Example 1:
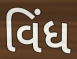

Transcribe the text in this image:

વિંધ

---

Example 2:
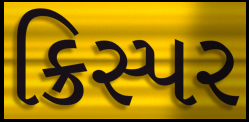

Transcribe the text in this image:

ક્રિસ્પર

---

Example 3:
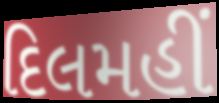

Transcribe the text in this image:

દિલમહીં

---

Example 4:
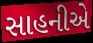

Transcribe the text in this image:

સાહનીએ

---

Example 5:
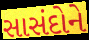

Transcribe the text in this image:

સાસંદોને